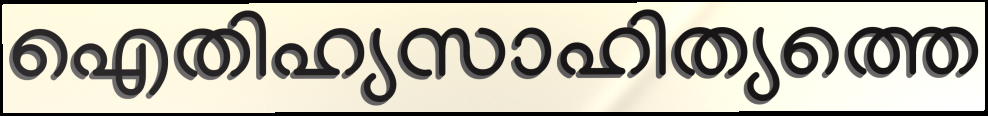
ഐതിഹ്യസാഹിത്യത്തെ